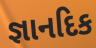
જ્ઞાનદિક